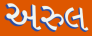
અરુલ